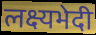
लक्ष्यभेदी